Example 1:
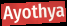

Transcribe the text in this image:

Ayothya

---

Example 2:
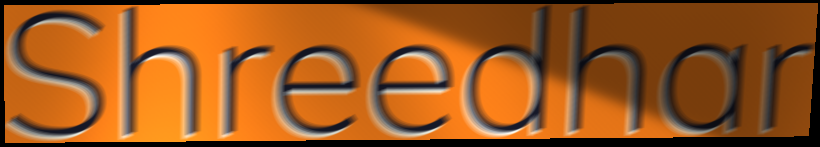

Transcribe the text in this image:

Shreedhar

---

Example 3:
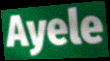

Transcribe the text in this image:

Ayele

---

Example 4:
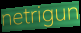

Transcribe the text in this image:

netrigun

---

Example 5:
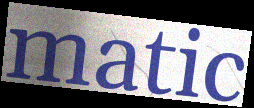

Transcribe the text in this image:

matic